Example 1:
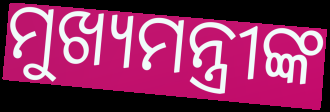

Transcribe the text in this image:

ମୁଖ୍ୟମନ୍ତ୍ରୀଙ୍କ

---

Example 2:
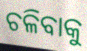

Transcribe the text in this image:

ଚଳିବାକୁ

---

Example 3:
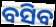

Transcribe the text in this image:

ବସିବ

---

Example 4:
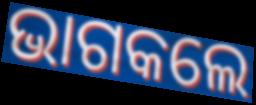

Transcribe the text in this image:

ଭାଗକଲେ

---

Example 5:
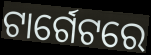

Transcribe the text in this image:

ଟାର୍ଗେଟରେ